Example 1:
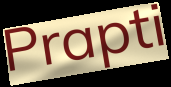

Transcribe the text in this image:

Prapti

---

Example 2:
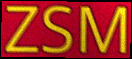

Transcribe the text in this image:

ZSM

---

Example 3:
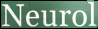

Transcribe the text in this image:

Neurol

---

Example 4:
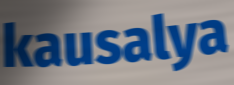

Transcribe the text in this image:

kausalya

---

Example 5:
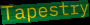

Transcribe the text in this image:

Tapestry